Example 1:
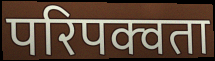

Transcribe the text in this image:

परिपक्‍वता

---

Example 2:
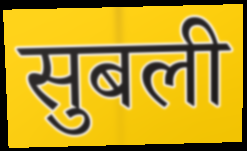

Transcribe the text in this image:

सुबली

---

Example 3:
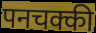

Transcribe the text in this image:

पनचक्की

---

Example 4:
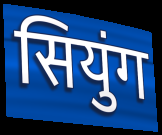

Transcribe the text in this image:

सियुंग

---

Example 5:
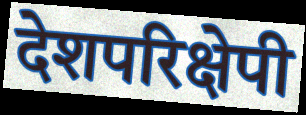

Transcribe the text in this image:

देशपरिक्षेपी